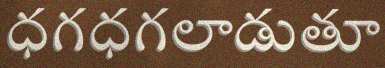
ధగధగలాడుతూ